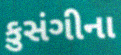
કુસંગીના